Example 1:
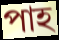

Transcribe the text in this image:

পাহ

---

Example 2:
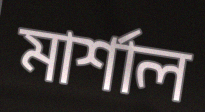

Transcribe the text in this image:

মাৰ্শাল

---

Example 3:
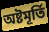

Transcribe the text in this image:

অষ্টমূৰ্তি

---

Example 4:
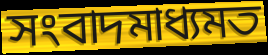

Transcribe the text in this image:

সংবাদমাধ্যমত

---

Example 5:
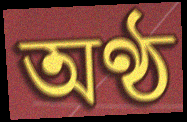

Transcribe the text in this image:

অণ্ঠ